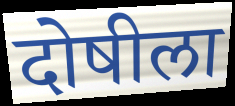
दोषीला